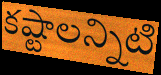
కష్టాలన్నిటి